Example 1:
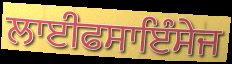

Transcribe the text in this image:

ਲਾਈਫਸਾਇੰਸੇਜ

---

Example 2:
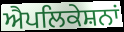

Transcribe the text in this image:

ਐਪਲਿਕੇਸ਼ਨਾਂ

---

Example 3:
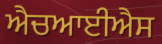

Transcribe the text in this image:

ਐਚਆਈਐਸ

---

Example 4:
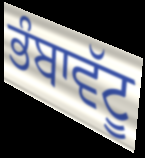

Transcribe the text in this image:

ਭੰਬਾਵੱਟੂ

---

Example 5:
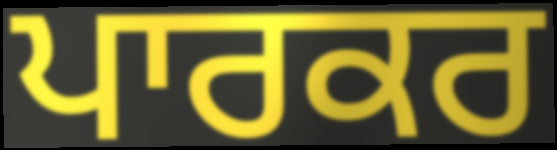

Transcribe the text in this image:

ਪਾਰਕਰ